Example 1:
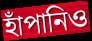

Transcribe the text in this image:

হাঁপানিও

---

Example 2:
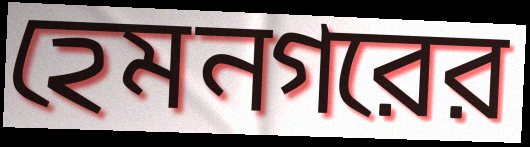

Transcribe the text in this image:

হেমনগরের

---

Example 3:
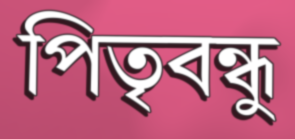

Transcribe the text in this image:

পিতৃবন্ধু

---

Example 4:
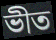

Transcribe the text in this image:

ভীত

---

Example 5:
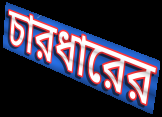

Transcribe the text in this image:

চারধারের